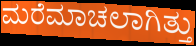
ಮರೆಮಾಚಲಾಗಿತ್ತು